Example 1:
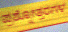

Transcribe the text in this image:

ಪ್ರಶ್ನೋತ್ತರಗಳ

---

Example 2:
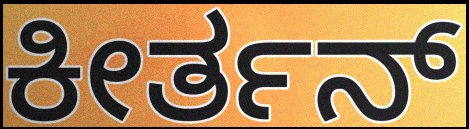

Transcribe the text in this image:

ಕೀರ್ತನ್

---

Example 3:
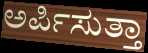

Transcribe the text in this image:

ಅರ್ಪಿಸುತ್ತಾ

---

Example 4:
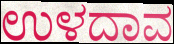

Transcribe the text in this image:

ಉಳದಾವ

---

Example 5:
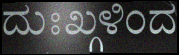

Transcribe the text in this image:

ದುಃಖ್ಗಳಿಂದ